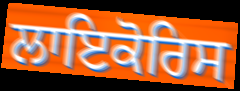
ਲਾਇਕੋਰਿਸ